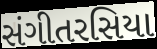
સંગીતરસિયા